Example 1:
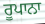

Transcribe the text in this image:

ਰੂਪਾਨਾ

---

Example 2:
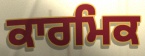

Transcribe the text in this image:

ਕਾਰਮਿਕ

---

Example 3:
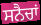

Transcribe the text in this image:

ਸਨੈਚਾਂ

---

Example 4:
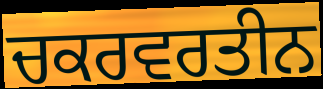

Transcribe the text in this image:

ਚਕਰਵਰਤੀਨ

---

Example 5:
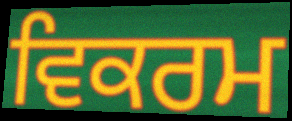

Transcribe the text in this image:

ਵਿਕਰਮ